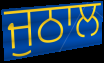
ਜੁਠਾਲ